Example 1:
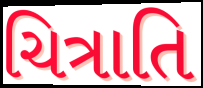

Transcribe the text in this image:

ચિત્રાતિ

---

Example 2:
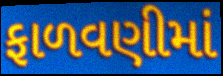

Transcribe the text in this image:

ફાળવણીમાં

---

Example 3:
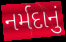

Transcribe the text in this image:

નર્મદાનું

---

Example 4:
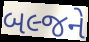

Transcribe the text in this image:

બલ્જને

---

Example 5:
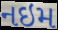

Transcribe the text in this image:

નઇમ